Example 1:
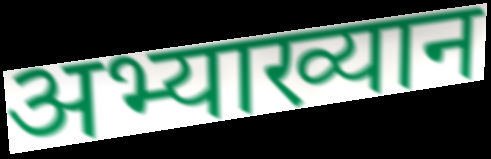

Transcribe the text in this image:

अभ्याख्यान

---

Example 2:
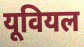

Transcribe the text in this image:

यूवियल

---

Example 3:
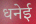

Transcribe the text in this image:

धनेई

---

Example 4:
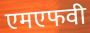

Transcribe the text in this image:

एमएफवी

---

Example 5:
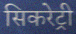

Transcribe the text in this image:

सिकरेट्री